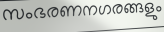
സംഭരണനഗരങ്ങളും